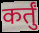
कर्तुं